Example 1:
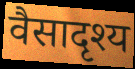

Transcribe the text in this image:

वैसादृश्य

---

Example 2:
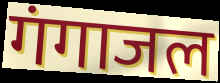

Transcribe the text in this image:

गंगाजल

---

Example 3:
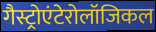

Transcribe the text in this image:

गैस्ट्रोएंटेरोलॉजिकल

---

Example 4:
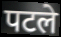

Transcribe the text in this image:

पटले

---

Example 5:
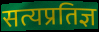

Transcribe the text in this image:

सत्यप्रतिज्ञ